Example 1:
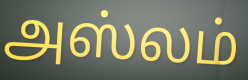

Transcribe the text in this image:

அஸ்லம்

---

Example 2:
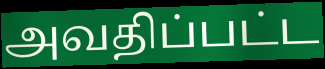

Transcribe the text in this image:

அவதிப்பட்ட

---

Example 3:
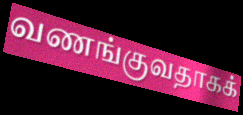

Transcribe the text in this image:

வணங்குவதாகக்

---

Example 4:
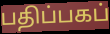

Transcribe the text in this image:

பதிப்பகப்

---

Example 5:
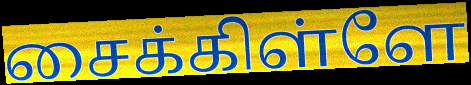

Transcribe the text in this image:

சைக்கிள்ளே